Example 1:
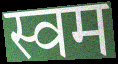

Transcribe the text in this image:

स्वम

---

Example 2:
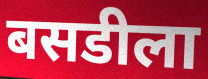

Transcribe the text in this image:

बसडीला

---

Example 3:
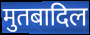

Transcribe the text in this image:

मुतबादिल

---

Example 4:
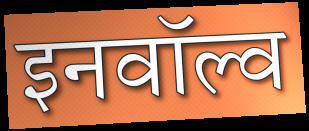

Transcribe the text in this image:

इनवॉल्व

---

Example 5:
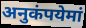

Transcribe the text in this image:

अनुकंपयेमां